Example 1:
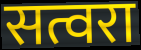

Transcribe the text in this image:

सत्वरा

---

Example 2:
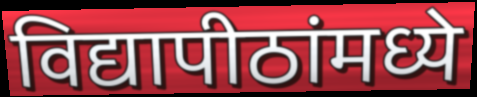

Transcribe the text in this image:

विद्यापीठांमध्ये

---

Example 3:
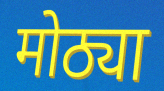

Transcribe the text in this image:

मोठ्या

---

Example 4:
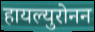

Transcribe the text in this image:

हायल्युरोनन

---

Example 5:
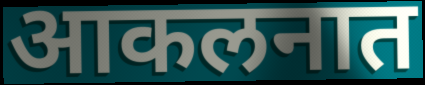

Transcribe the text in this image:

आकलनात